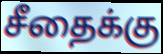
சீதைக்கு